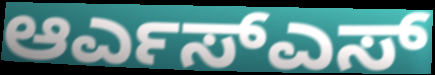
ಆರ್ಎಸ್ಎಸ್